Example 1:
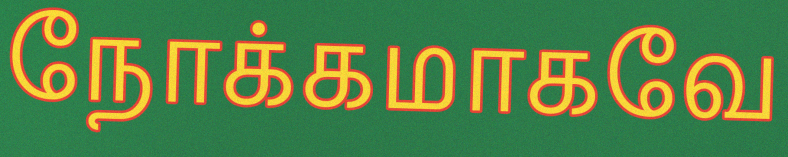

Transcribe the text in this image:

நோக்கமாகவே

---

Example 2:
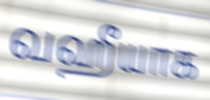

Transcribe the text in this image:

வஹீயாக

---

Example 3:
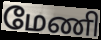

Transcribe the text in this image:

மேணி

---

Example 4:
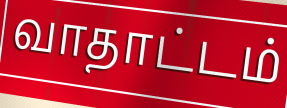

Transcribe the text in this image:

வாதாட்டம்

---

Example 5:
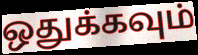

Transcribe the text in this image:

ஒதுக்கவும்